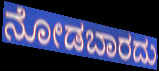
ನೋಡಬಾರದು